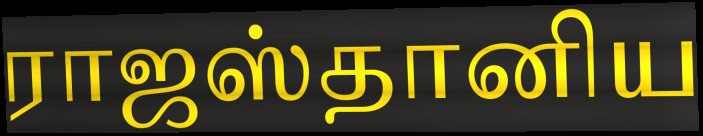
ராஜஸ்தானிய